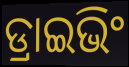
ଡ୍ରାଇଭିଂ